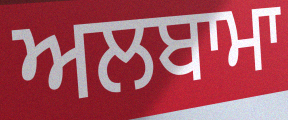
ਅਲਬਾਮਾ